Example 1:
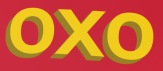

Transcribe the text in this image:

oxo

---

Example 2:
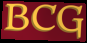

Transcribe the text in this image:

BCG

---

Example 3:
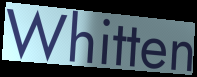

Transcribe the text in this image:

Whitten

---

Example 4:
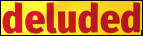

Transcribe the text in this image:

deluded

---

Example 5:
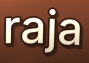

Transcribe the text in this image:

raja